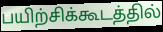
பயிற்சிக்கூடத்தில்